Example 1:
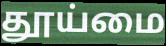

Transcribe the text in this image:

தூய்மை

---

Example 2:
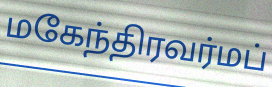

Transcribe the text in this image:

மகேந்திரவர்மப்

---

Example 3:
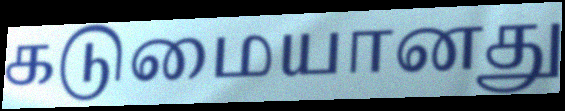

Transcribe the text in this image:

கடுமையானது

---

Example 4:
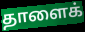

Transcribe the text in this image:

தாளைக்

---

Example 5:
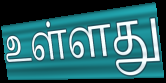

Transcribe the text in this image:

உள்ளது